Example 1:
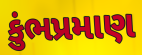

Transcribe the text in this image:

કુંભપ્રમાણ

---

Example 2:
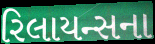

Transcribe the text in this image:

રિલાયન્સના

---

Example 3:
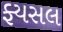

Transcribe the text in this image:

ફ્યસલ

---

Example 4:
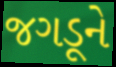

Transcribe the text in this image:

જગડૂને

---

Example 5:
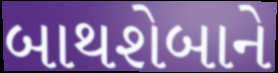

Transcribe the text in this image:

બાથશેબાને